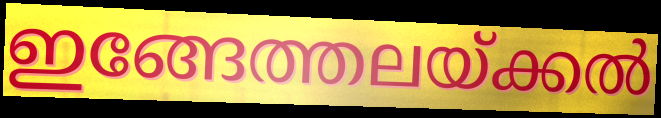
ഇങ്ങേത്തലയ്ക്കൽ